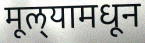
मूल्यामधून